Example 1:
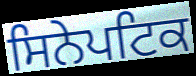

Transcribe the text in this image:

ਸਿਨੇਪਟਿਕ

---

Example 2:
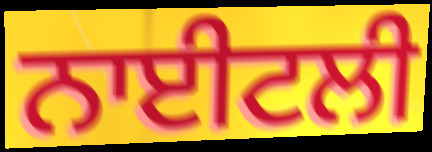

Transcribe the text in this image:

ਨਾਈਟਲੀ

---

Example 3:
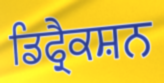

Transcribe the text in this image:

ਡਿਫ੍ਰੈਕਸ਼ਨ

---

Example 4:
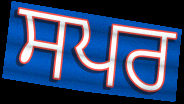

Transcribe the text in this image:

ਸਪਰ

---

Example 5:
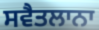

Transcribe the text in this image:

ਸਵੈਤਲਾਨਾ